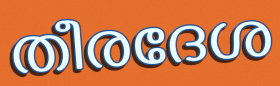
തീരദേശ